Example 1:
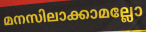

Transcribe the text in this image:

മനസിലാക്കാമല്ലോ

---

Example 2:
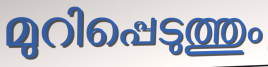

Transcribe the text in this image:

മുറിപ്പെടുത്തും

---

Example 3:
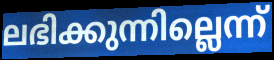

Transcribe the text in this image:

ലഭിക്കുന്നില്ലെന്ന്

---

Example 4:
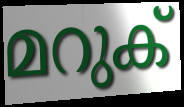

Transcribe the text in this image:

മറുക്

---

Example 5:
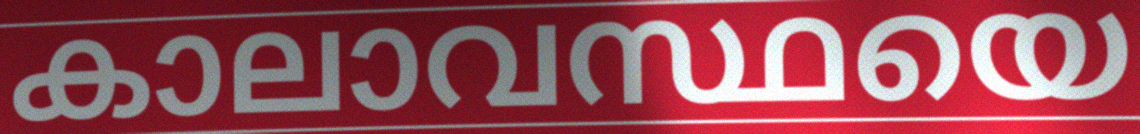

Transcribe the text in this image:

കാലാവസ്ഥയെ